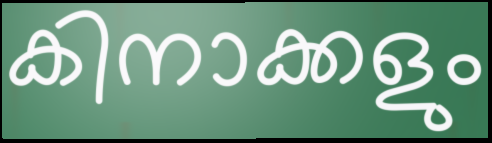
കിനാക്കളും